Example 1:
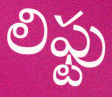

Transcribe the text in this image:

లిఫ్టు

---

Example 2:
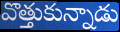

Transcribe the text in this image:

వొత్తుకున్నాడు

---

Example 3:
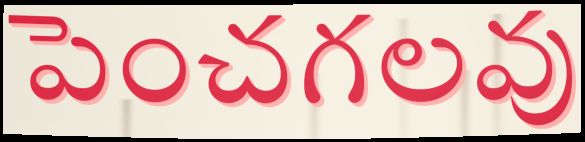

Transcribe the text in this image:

పెంచగలవు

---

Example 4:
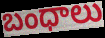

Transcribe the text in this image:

బంధాలు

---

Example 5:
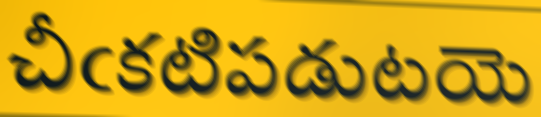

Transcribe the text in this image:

చీఁకటిపడుటయె